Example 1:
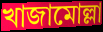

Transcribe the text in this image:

খাজামোল্লা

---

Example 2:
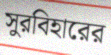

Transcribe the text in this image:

সুরবিহারের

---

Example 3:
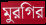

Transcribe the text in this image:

মুরগির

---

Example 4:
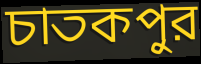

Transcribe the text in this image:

চাতকপুর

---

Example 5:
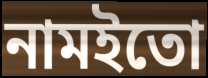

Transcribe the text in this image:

নামইতো